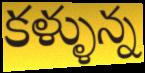
కళ్ళున్న